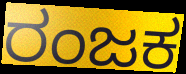
ರಂಜಕ